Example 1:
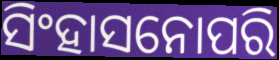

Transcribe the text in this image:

ସିଂହାସନୋପରି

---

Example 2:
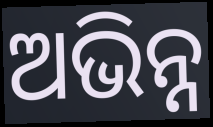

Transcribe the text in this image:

ଅଭିନ୍ନ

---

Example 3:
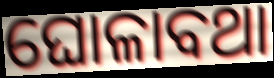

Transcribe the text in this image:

ଘୋଳାବଥା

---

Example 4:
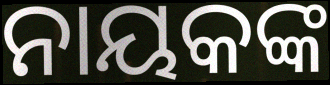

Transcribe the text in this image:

ନାୟକଙ୍କ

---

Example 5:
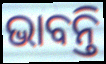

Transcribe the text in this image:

ଭାବନ୍ତି